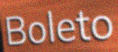
Boleto